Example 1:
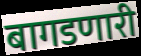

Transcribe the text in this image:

बागडणारी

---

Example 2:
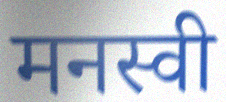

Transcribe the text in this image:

मनस्वी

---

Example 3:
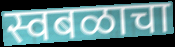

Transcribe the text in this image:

स्वबळाचा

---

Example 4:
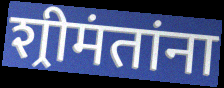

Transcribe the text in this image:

श्रीमंतांना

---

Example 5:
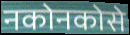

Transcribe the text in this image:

नकोनकोसे